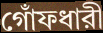
গোঁফধারী